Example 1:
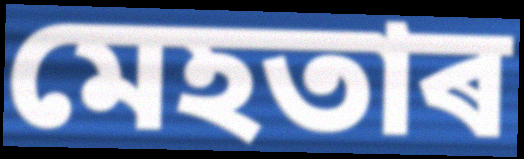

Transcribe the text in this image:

মেহতাৰ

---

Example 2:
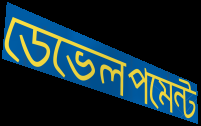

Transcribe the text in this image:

ডেভেলপমেন্ট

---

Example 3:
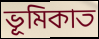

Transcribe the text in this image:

ভূমিকাত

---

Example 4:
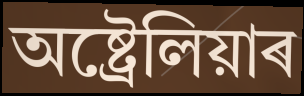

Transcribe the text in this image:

অষ্ট্ৰেলিয়াৰ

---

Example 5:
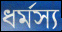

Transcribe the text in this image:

ধৰ্মস্য